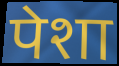
पेशा